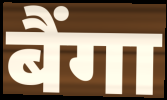
बैंगा